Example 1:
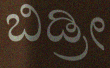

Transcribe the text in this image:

ಬಿಡ್ರೀ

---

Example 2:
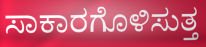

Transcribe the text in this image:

ಸಾಕಾರಗೊಳಿಸುತ್ತ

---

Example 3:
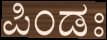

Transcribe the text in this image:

ಪಿಂಡಃ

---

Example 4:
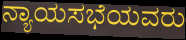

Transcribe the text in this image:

ನ್ಯಾಯಸಭೆಯವರು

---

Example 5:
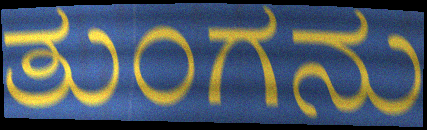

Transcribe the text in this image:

ತುಂಗನು